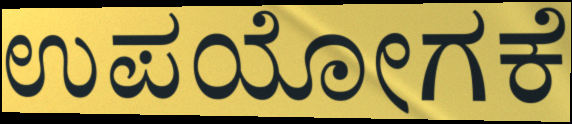
ಉಪಯೋಗಕೆ